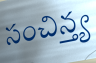
సంచిన్త్య